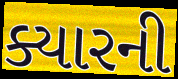
ક્યારની